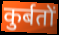
कुर्बतों